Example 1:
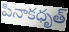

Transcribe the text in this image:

పినాకధృత్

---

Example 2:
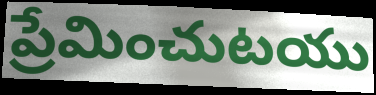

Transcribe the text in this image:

ప్రేమించుటయు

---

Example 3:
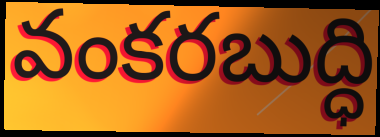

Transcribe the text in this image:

వంకరబుద్ధి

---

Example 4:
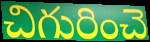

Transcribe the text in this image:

చిగురించె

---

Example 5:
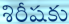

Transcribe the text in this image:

శిరీషకు